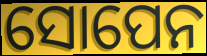
ସୋପେନ